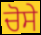
ਚੋਸੇ